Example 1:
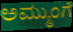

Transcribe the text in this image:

ಅಮ್ಮುಂಗೆ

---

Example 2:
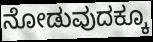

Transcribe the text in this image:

ನೋಡುವುದಕ್ಕೂ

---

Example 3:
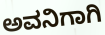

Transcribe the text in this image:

ಅವನಿಗಾಗಿ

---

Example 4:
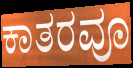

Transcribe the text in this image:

ಕಾತರವೂ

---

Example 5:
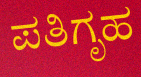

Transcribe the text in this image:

ಪತಿಗೃಹ